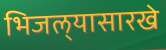
भिजल्यासारखे